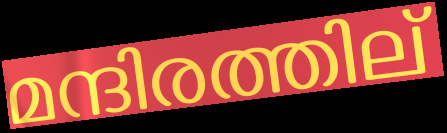
മന്ദിരത്തില്